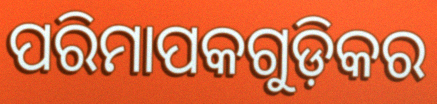
ପରିମାପକଗୁଡ଼ିକର